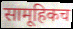
सामूहिकच